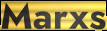
Marxs